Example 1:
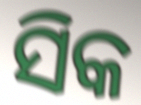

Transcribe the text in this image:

ସିକ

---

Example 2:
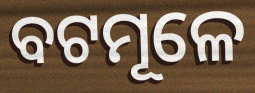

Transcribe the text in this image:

ବଟମୂଳେ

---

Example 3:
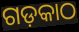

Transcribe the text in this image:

ଗଡ଼କାଠ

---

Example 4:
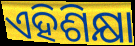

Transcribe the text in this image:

ଏହିଶିକ୍ଷା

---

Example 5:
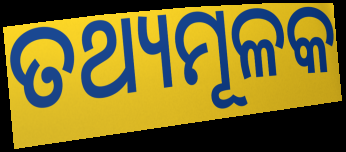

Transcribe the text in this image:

ତଥ୍ୟମୂଳକ